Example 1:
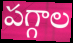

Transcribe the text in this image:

పగ్గాల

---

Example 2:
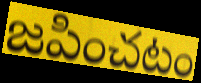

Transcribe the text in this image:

జపించటం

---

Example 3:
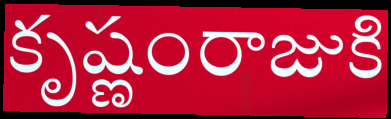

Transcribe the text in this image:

కృష్ణంరాజుకి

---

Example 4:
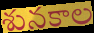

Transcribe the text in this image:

శునకాల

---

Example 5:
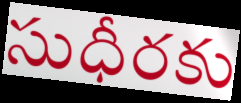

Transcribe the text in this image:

సుధీరకు